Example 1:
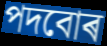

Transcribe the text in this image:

পদবোৰ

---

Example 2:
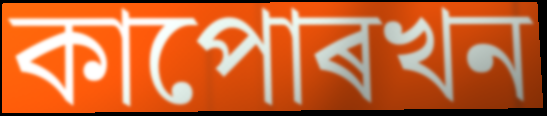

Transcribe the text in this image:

কাপোৰখন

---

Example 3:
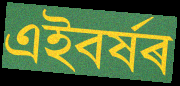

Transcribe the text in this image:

এইবৰ্ষৰ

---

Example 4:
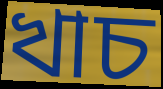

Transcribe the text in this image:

খাচ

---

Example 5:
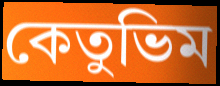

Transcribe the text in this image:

কেতুভিম